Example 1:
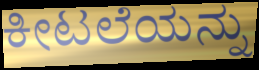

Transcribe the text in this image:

ಕೀಟಲೆಯನ್ನು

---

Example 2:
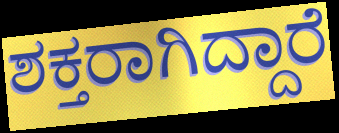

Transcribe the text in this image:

ಶಕ್ತರಾಗಿದ್ದಾರೆ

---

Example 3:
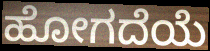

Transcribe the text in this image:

ಹೋಗದೆಯೆ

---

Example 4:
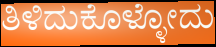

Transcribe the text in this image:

ತಿಳಿದುಕೊಳ್ಳೋದು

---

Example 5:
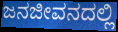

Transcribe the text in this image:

ಜನಜೀವನದಲ್ಲಿ